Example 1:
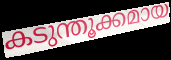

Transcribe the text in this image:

കടുന്തൂക്കമായ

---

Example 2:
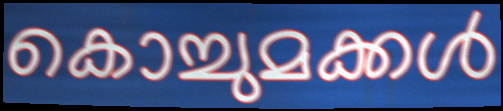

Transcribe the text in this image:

കൊച്ചുമക്കൾ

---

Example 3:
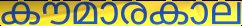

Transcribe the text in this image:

കൗമാരകാല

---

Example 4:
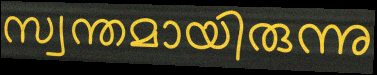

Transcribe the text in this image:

സ്വന്തമായിരുന്നു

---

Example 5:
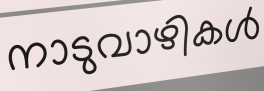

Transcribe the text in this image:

നാടുവാഴികൾ